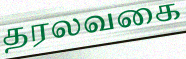
தரலவகை